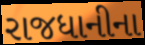
રાજધાનીના